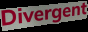
Divergent